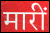
मारीं